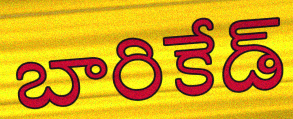
బారికేడ్